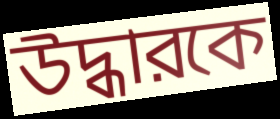
উদ্ধারকে